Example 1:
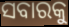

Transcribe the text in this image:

ସବାରକୁ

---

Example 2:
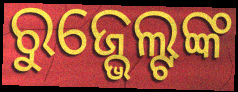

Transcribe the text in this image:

ରୁଜ୍ଭେଲ୍ଟଙ୍କ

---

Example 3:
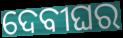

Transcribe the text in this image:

ଦେବୀଘର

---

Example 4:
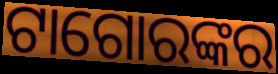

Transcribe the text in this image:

ଟାଗୋରଙ୍କର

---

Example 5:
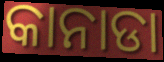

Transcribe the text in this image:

କାନାଡା